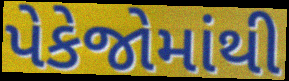
પેકેજોમાંથી